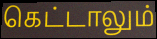
கெட்டாலும்